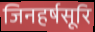
जिनहर्षसूरि